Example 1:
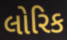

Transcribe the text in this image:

લોરિક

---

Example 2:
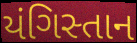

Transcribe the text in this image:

યંગિસ્તાન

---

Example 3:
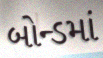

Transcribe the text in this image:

બોન્ડમાં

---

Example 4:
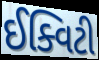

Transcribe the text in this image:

ઈક્વિટી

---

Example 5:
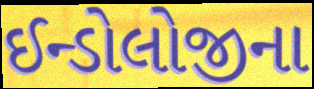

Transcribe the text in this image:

ઈન્ડોલોજીના